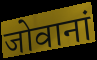
जोवानां